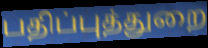
பதிப்புத்துறை